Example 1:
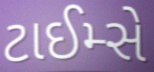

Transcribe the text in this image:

ટાઈમ્સે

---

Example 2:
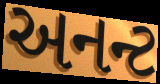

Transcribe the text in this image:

અનન્ટ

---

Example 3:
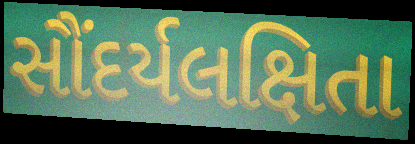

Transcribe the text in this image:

સૌંદર્યલક્ષિતા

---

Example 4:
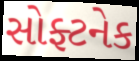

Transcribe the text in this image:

સોફ્ટનેક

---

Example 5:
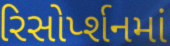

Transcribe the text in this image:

રિસોર્પ્શનમાં